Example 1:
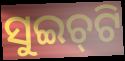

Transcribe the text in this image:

ସୁଇଚ୍‌ଟି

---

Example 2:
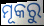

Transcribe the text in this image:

ମୂକରୁ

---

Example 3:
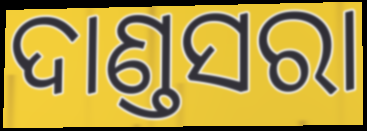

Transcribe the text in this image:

ଦାଣ୍ଡସରା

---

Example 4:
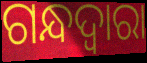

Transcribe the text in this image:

ଗନ୍ଧଦ୍ୱାରା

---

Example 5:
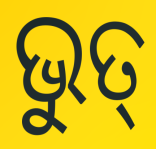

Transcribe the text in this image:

ଭୁତ୍